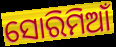
ସୋରିମିଆଁ